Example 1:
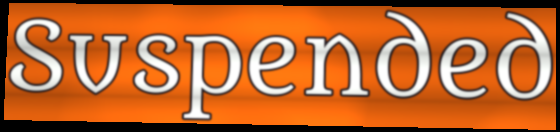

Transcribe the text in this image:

Suspended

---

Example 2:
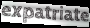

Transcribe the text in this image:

expatriate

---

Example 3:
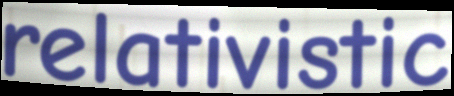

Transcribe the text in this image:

relativistic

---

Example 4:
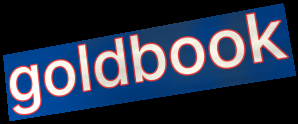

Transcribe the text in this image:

goldbook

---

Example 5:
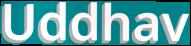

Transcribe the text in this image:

Uddhav